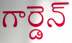
గార్డెన్